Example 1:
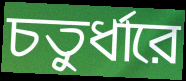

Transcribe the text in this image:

চতুর্ধারে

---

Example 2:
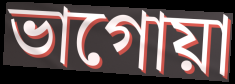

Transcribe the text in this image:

ভাগোয়া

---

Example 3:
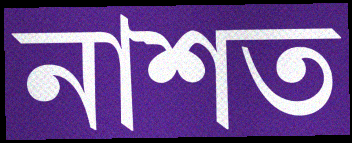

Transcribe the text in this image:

নাশত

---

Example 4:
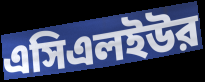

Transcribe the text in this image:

এসিএলইউর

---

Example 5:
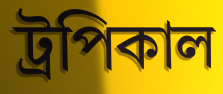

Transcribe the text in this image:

ট্রপিকাল